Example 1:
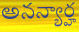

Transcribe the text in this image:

అనన్యార్హ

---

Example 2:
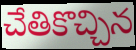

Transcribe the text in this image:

చేతికొచ్చిన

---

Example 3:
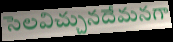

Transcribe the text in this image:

సెలవిచ్చునదేమనగా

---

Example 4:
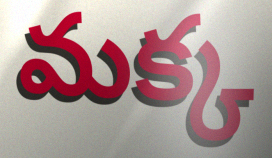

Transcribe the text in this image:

మక్క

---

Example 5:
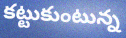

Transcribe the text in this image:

కట్టుకుంటున్న